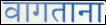
वागताना